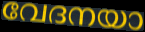
വേദനയാ